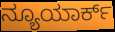
ನ್ಯೂಯಾರ್ಕ್